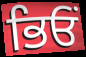
ਭਿਓਂ